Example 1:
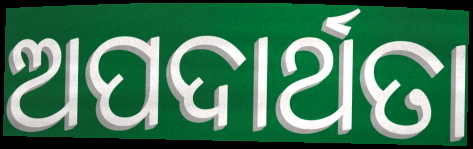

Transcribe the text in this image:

ଅପଦାର୍ଥତା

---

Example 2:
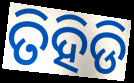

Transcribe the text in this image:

ତିହିଡି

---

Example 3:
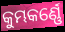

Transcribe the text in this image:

କୁମ୍ଭକର୍ଣ୍ଣେ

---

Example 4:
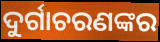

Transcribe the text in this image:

ଦୁର୍ଗାଚରଣଙ୍କର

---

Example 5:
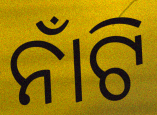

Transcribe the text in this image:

ନାଁଟି